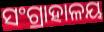
ସଂଗ୍ରାହାଳୟ